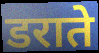
डराते